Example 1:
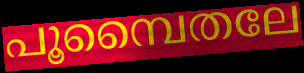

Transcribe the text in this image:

പൂമ്പൈതലേ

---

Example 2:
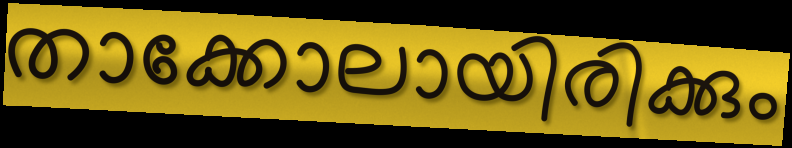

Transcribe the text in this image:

താക്കോലായിരിക്കും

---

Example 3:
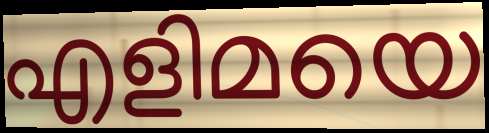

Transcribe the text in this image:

എളിമയെ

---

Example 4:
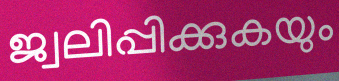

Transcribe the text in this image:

ജ്വലിപ്പിക്കുകയും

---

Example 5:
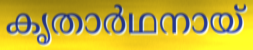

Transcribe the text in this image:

കൃതാർഥനായ്